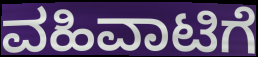
ವಹಿವಾಟಿಗೆ